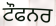
ਟੌਫਨਰ